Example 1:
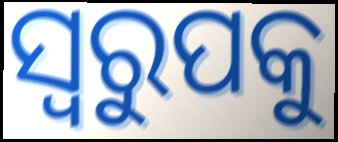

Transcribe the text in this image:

ସ୍ଵରୁପକୁ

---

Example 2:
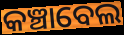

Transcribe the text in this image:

କଞ୍ଚାବେଲ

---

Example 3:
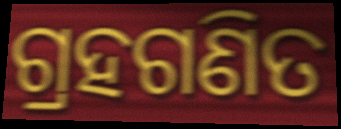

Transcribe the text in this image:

ଗ୍ରହଗଣିତ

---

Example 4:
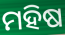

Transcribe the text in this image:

ମହିଷ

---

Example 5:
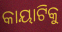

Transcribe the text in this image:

କାୟାଟିକୁ